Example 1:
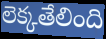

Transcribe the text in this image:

లెక్కతేలింది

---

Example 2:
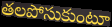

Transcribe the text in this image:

తలపోసుకుంటూ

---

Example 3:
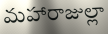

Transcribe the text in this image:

మహారాజుల్లా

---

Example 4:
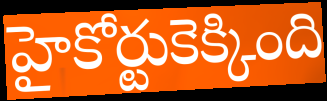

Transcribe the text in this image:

హైకోర్టుకెక్కింది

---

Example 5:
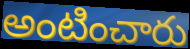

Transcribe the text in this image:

అంటించారు